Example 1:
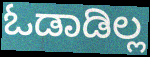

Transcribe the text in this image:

ಓಡಾಡಿಲ್ಲ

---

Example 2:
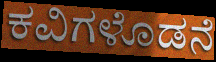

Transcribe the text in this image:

ಕವಿಗಳೊಡನೆ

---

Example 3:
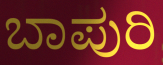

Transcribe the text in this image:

ಬಾಪುರಿ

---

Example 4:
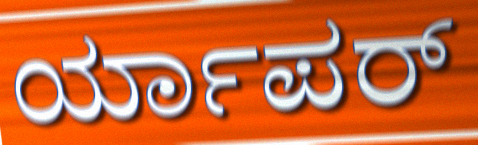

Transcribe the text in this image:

ರ್ಯಾಪರ್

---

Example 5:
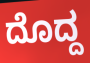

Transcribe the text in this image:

ದೊದ್ದ